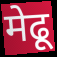
मेढू